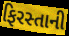
ફિરસ્તાની